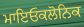
ਮਾਇਓਕਲੋਨਿਕ